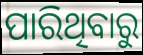
ପାରିଥିବାରୁ